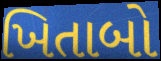
ખિતાબો